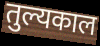
तुल्यकाल